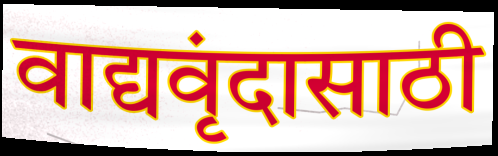
वाद्यवृंदासाठी